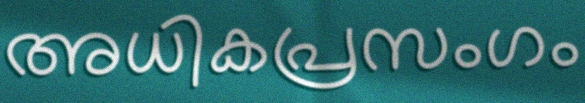
അധികപ്രസംഗം